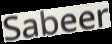
Sabeer